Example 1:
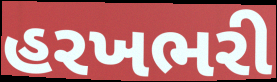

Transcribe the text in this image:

હરખભરી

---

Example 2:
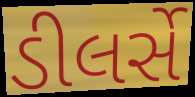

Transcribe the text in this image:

ડીલર્સે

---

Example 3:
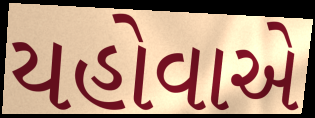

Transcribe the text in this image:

યહોવાએ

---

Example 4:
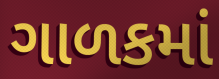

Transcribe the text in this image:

ગાળકમાં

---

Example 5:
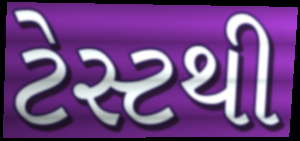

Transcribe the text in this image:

ટેસ્ટથી